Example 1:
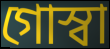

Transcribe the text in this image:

গোস্বা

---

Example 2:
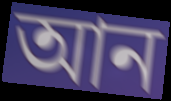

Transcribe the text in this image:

আন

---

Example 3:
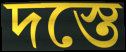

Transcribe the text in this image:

দস্তে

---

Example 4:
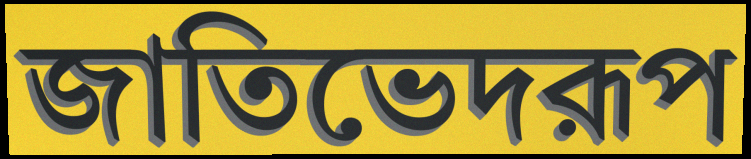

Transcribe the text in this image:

জাতিভেদরূপ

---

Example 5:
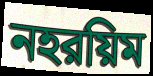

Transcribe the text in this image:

নহরয়িম